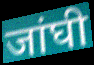
जांघी